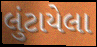
લુંટાયેલા